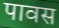
पावस